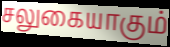
சலுகையாகும்